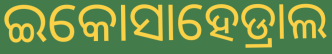
ଇକୋସାହେଡ୍ରାଲ